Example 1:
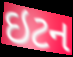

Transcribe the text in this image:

ઇટન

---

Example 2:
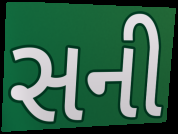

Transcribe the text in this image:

સની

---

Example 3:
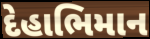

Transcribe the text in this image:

દેહાભિમાન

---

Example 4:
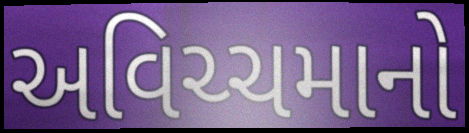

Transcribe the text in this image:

અવિચ્ચમાનો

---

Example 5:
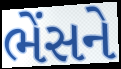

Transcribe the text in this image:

ભેંસને